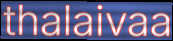
thalaivaa